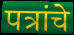
पत्रांचे